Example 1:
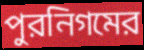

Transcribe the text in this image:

পুরনিগমের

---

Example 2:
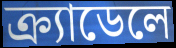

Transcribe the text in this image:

ক্র্যাডেলে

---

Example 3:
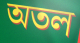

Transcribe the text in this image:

অতল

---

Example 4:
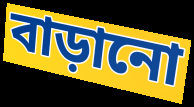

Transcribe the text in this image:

বাড়ানো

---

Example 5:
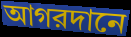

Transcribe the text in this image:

আগরদানে